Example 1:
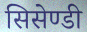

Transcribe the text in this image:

सिसेण्डी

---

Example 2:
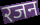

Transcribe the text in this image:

रजन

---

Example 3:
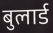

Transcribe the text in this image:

बुलार्ड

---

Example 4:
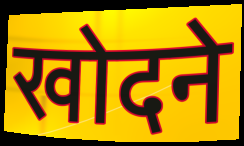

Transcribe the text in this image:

खोदने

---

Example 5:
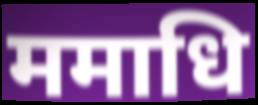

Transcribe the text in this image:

ममाधि